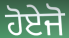
ਹੋਏਜੋ